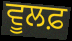
ਵੂਲਫ਼